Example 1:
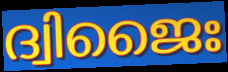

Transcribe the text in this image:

ദ്വിജൈഃ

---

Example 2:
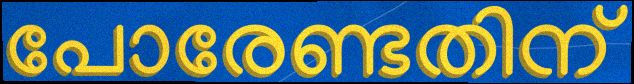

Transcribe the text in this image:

പോരേണ്ടതിന്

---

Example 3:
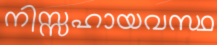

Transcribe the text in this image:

നിസ്സഹായവസ്ഥ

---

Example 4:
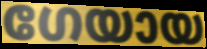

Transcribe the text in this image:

ഗേയായ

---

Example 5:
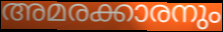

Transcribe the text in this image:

അമരക്കാരനും